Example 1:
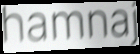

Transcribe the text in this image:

hamnaj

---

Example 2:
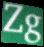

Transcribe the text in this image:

Zg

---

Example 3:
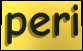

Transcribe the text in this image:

peri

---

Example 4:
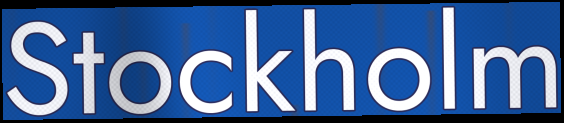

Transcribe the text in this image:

Stockholm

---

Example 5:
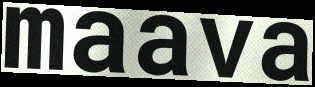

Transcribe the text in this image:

maava